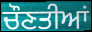
ਚੌਣਤੀਆਂ